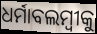
ଧର୍ମାବଲମ୍ବୀକୁ